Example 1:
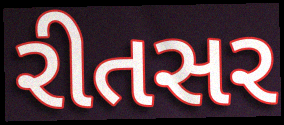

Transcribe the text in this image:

રીતસર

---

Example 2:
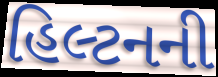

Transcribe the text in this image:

હિલ્ટનની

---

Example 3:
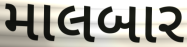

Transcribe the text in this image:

માલબાર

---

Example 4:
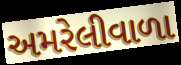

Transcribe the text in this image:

અમરેલીવાળા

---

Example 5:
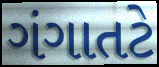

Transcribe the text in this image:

ગંગાતટે